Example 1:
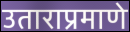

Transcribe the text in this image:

उताराप्रमाणे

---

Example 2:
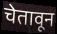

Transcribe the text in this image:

चेतावून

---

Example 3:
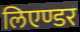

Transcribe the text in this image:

लिएण्डर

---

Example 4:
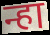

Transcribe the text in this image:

न्हा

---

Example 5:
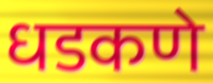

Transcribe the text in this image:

धडकणे